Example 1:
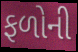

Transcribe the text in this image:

ફળોની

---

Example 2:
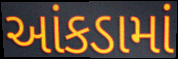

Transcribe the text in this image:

આંકડામાં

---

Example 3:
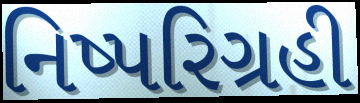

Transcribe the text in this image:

નિષ્પરિગ્રહી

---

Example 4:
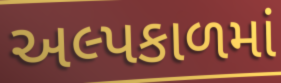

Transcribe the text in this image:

અલ્પકાળમાં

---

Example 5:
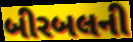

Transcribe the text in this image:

બીરબલની